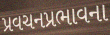
પ્રવચનપ્રભાવના